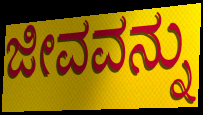
ಜೀವವನ್ನು